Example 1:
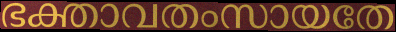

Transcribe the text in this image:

ഭക്താവതംസായതേ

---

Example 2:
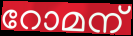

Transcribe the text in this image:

റോമന്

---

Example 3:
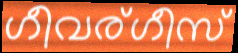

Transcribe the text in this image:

ഗീവര്ഗീസ്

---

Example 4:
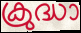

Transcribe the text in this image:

ക്രുദ്ധാ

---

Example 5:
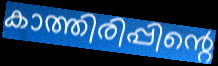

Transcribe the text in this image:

കാത്തിരിപ്പിന്റെ